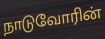
நாடுவோரின்